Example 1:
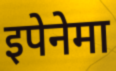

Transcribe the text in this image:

इपेनेमा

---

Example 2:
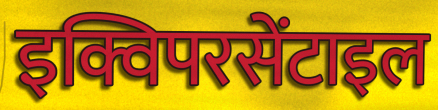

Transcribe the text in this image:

इक्विपरसेंटाइल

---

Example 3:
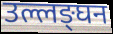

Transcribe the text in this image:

उल्लङ्घन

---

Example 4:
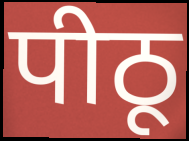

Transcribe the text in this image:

पीठू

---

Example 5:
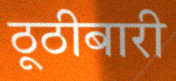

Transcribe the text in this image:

ठूठीबारी